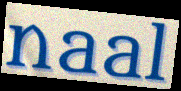
naal